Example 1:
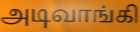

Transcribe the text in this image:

அடிவாங்கி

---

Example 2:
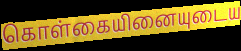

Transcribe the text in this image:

கொள்கையினையுடைய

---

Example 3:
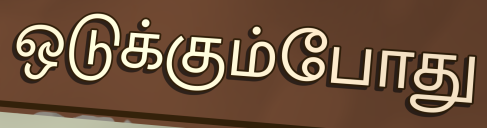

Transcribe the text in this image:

ஒடுக்கும்போது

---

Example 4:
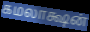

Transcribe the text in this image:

கமலாக்ஷன்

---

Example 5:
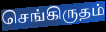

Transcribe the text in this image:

செங்கிருதம்